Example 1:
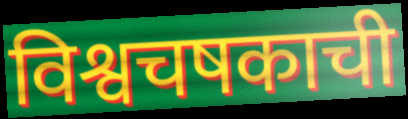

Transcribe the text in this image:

विश्वचषकाची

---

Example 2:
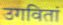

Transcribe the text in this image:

उगवितां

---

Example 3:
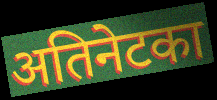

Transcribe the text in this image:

अतिनेटका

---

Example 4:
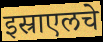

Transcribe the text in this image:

इस्राएलचे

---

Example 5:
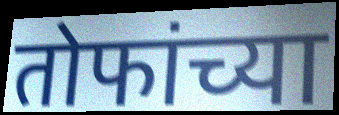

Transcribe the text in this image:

तोफांच्या